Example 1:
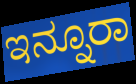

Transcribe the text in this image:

ಇನ್ನೂರಾ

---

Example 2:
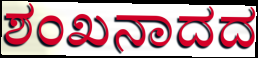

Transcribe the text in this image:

ಶಂಖನಾದದ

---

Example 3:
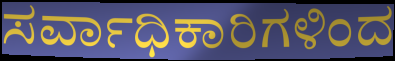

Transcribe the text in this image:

ಸರ್ವಾಧಿಕಾರಿಗಳಿಂದ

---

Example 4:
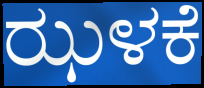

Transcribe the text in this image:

ಝಳಕೆ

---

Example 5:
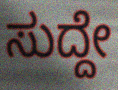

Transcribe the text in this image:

ಸುದ್ದೇ